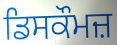
ਡਿਸਕੌਮਜ਼